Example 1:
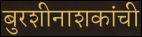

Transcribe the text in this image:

बुरशीनाशकांची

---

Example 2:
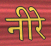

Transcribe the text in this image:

नीरे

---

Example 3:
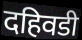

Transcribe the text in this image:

दहिवडी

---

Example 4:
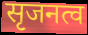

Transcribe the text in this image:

सृजनत्व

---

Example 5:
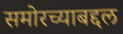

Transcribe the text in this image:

समोरच्याबद्दल